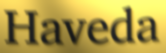
Haveda